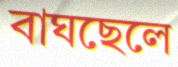
বাঘছেলে